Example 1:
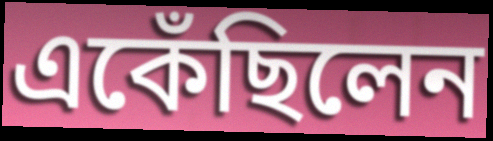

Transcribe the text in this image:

একেঁছিলেন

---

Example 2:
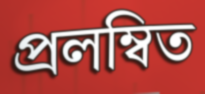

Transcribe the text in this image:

প্রলম্বিত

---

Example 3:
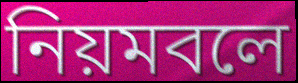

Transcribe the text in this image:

নিয়মবলে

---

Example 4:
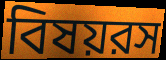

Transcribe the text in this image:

বিষয়রস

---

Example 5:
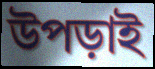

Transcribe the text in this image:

উপড়াই